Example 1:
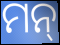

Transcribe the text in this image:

ମନ୍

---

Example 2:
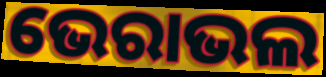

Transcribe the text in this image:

ଭେରାଭଲ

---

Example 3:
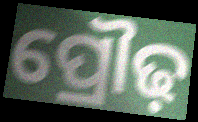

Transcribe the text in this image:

ପ୍ରୌଢ଼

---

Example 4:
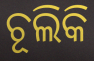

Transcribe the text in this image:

ଚୂଲିକି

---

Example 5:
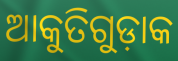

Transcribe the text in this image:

ଆକୁତିଗୁଡ଼ାକ